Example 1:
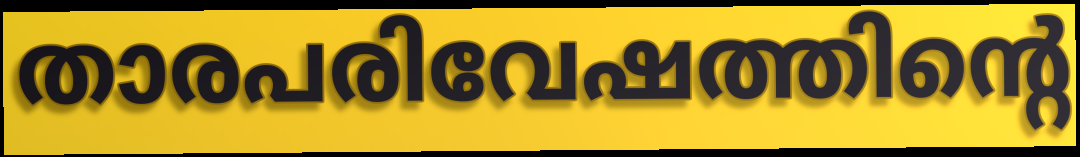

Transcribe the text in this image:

താരപരിവേഷത്തിന്റെ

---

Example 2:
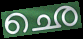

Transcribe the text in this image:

ഛെ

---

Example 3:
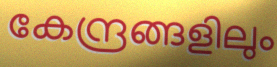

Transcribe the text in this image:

കേന്ദ്രങ്ങളിലും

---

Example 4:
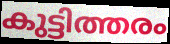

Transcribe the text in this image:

കുട്ടിത്തരം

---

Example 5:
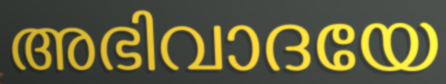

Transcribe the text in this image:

അഭിവാദയേ